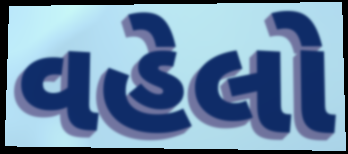
વહેલો